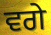
ਵਗੇ